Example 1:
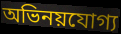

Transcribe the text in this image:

অভিনয়যোগ্য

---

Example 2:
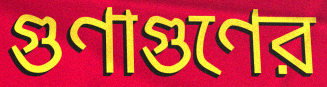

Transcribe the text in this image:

গুণাগুণের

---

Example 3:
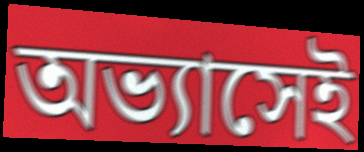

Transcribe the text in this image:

অভ্যাসেই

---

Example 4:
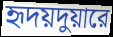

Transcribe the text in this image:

হৃদয়দুয়ারে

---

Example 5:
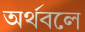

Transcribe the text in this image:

অর্থবলে